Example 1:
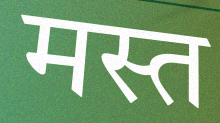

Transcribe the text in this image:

मस्‍त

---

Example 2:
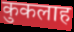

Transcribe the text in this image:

कुकलाह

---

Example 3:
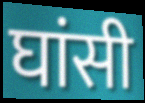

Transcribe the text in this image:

घांसी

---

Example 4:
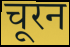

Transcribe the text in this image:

चूरन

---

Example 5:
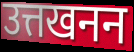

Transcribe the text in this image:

उत्तखनन